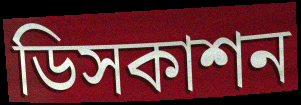
ডিসকাশন